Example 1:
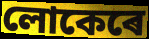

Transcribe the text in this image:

লোকেৰে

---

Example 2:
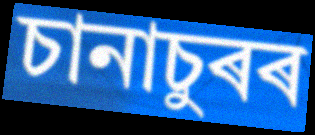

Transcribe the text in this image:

চানাচুৰৰ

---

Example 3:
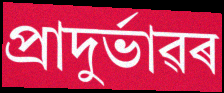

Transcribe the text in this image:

প্ৰাদুৰ্ভাৱৰ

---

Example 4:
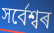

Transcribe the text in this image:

সৰ্বেশ্বৰ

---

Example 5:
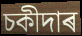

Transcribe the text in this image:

চকীদাৰ